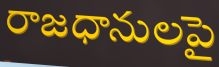
రాజధానులపై